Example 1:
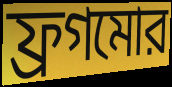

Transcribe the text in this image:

ফ্রগমোর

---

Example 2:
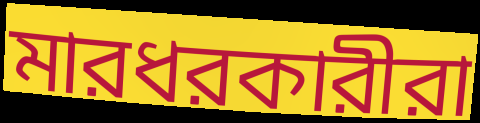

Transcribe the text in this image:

মারধরকারীরা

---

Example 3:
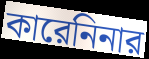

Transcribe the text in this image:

কারেনিনার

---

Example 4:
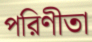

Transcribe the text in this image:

পরিণীতা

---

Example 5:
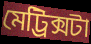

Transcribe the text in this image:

মেট্রিক্সটা